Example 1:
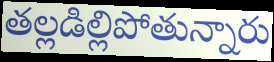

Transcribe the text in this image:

తల్లడిల్లిపోతున్నారు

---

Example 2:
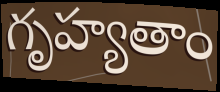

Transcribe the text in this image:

గృహ్యతాం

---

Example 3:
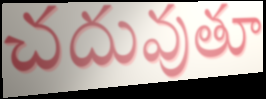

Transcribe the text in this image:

చదువుతూ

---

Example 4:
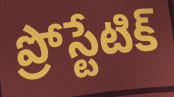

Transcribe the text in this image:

ప్రోస్టేటిక్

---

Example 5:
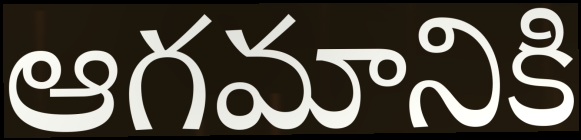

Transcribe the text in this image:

ఆగమానికి